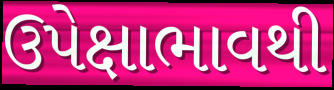
ઉપેક્ષાભાવથી